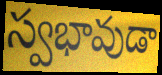
స్వభావుడా